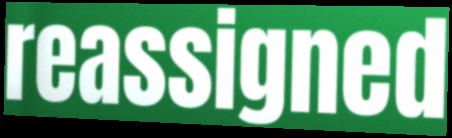
reassigned